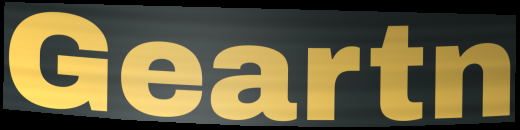
Geartn